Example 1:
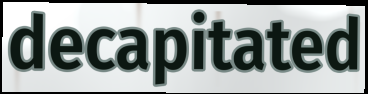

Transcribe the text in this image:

decapitated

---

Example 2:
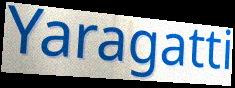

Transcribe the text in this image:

Yaragatti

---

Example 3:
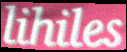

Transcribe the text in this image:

lihiles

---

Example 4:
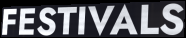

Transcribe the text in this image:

FESTIVALS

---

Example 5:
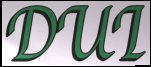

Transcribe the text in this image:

DUI